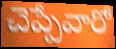
చెప్పేవారో